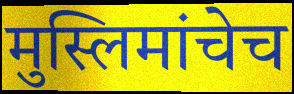
मुस्लिमांचेच